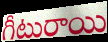
గీటురాయి